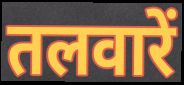
तलवारें